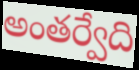
అంతర్వేది